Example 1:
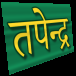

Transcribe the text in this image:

तपेन्द्र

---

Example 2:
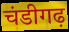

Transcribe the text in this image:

चंडीगढ़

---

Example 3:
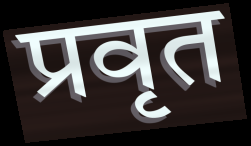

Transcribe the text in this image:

प्रवृत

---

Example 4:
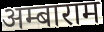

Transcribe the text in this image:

अम्बाराम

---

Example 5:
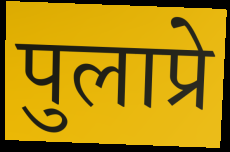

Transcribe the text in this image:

पुलाप्रे